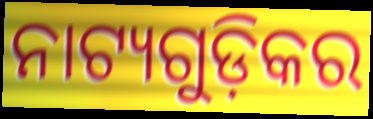
ନାଟ୍ୟଗୁଡ଼ିକର